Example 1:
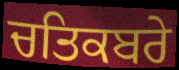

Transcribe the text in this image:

ਚਤਿਕਬਰੇ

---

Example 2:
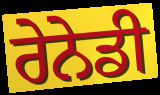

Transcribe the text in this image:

ਰੇਨੇਡੀ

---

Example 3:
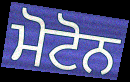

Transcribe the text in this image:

ਮੋਟੋਨ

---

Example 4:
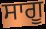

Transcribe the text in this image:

ਸਾਗੂ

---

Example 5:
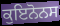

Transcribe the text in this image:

ਕੁਇਨੋਨਸ